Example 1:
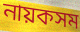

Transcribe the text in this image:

নায়কসম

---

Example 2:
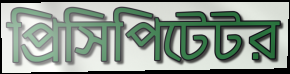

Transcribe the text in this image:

প্রিসিপিটেটর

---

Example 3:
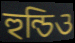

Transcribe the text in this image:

হুন্ডিও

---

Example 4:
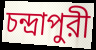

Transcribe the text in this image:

চন্দ্রাপুরী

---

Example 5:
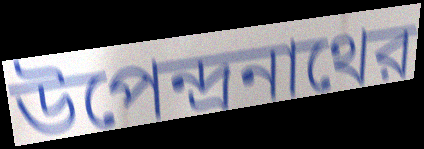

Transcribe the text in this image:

উপেন্দ্রনাথের